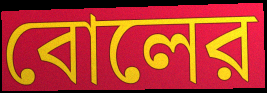
বোলের